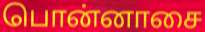
பொன்னாசை